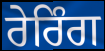
ਰੇਰਿੰਗ